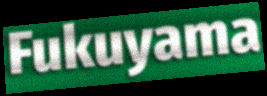
Fukuyama